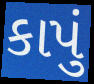
કાપું